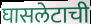
घासलेटाची